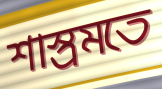
শাস্ত্ৰমতে